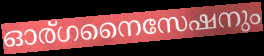
ഓര്ഗനൈസേഷനും